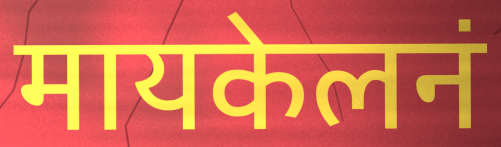
मायकेलनं